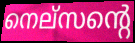
നെല്സന്റെ